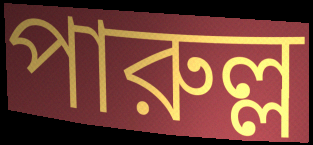
পারুল্ল